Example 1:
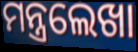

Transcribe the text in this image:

ମନ୍ତ୍ରଲେଖା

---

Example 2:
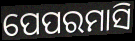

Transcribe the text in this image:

ପେପରମାସି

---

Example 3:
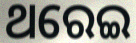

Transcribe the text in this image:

ଥରେଇ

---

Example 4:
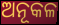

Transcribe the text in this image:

ଅନୂକଳ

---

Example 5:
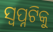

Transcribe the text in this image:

ସ୍ୱପ୍ନଟିକୁ